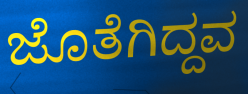
ಜೊತೆಗಿದ್ದವ